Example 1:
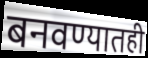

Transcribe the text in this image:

बनवण्यातही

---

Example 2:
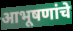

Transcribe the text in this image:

आभूषणांचे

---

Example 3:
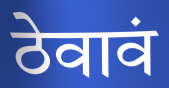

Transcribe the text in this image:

ठेवावं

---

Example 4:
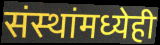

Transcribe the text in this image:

संस्थांमध्येही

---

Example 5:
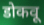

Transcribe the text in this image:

डोकवू